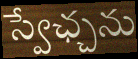
స్వేఛ్చను